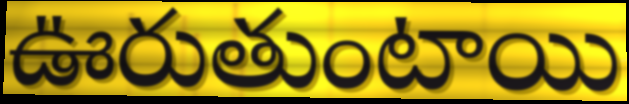
ఊరుతుంటాయి